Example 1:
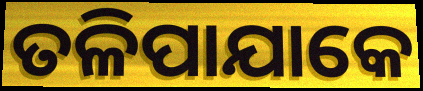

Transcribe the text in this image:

ତଳିପାଯାକେ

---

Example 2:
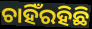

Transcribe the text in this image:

ଚାହିଁରହିଛି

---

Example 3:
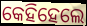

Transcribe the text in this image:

କେହିହେଲେ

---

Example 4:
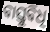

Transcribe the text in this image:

ବାସ୍ତୁବିଧି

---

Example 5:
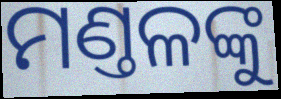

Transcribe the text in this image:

ମଣ୍ତଳଙ୍କୁ